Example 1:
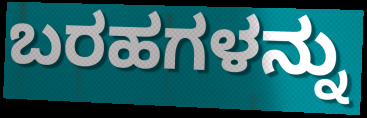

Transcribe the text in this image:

ಬರಹಗಳನ್ನು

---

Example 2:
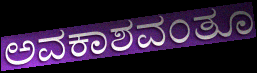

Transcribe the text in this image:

ಅವಕಾಶವಂತೂ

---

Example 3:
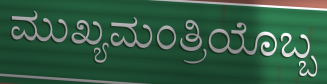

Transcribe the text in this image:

ಮುಖ್ಯಮಂತ್ರಿಯೊಬ್ಬ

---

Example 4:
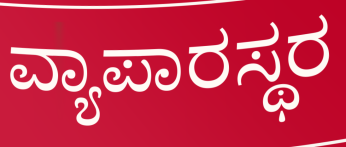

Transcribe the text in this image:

ವ್ಯಾಪಾರಸ್ಥರ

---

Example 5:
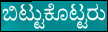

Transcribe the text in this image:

ಬಿಟ್ಟುಕೊಟ್ಟರು